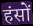
हंसों